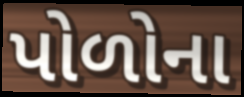
પોળોના